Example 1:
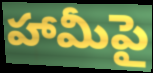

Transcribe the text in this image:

హామీపై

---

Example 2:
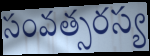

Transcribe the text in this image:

సంవత్సరస్య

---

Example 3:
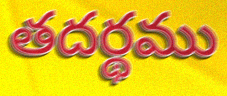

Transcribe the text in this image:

తదర్థము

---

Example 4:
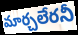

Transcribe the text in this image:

మార్చలేరనీ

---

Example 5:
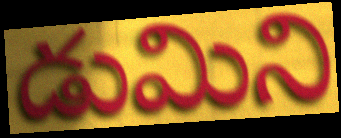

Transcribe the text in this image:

డుమిని